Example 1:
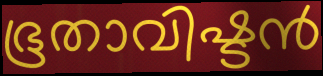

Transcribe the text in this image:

ഭൂതാവിഷ്ടൻ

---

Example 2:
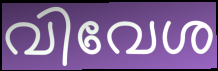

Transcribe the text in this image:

വിവേശ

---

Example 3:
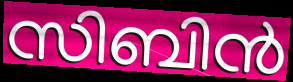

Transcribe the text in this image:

സിബിൻ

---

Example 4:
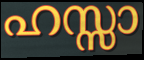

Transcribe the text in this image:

ഹസ്സാ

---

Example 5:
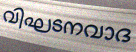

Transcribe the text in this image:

വിഘടനവാദ